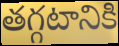
తగ్గటానికి